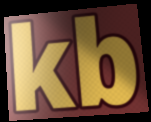
kb